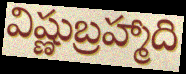
విష్ణుబ్రహ్మాది